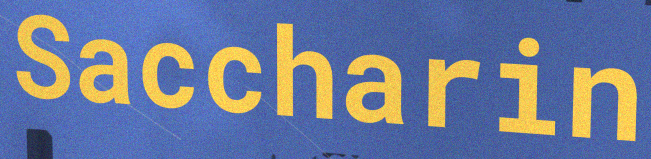
Saccharin